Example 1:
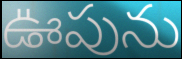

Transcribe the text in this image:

ఊపును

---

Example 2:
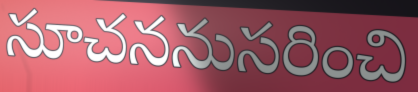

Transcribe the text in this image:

సూచననుసరించి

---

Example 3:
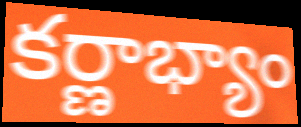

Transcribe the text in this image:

కర్ణాభ్యాం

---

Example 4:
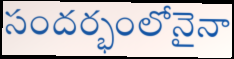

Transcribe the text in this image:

సందర్భంలోనైనా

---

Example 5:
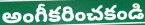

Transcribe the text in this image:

అంగీకరించకండి